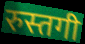
रुस्तगी